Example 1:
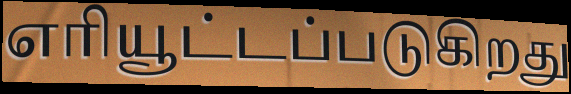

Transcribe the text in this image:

எரியூட்டப்படுகிறது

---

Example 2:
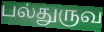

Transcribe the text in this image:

பல்துருவ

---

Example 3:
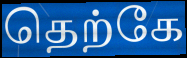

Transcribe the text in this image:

தெற்கே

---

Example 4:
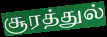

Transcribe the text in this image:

சூரத்துல்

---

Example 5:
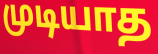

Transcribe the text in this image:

முடியாத